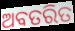
ଅବତରିତ